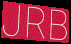
JRB